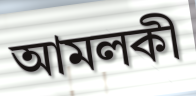
আমলকী